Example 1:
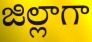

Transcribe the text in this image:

జిల్లాగా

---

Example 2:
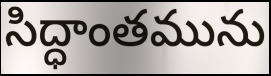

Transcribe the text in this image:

సిద్ధాంతమును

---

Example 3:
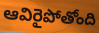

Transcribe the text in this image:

ఆవిరైపోతోంది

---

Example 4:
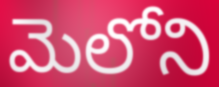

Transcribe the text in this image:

మెలోని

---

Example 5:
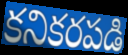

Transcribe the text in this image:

కనికరపడి